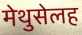
मेथुसेलह